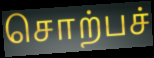
சொற்பச்